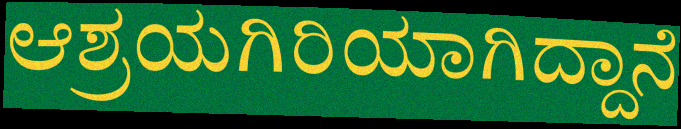
ಆಶ್ರಯಗಿರಿಯಾಗಿದ್ದಾನೆ